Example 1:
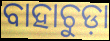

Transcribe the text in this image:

ବାହାଚୁଡ଼ା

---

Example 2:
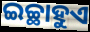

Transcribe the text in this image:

ଇଚ୍ଛାହୁଏ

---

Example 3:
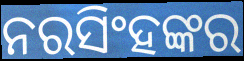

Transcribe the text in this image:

ନରସିଂହଙ୍କର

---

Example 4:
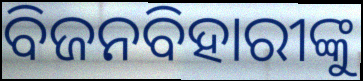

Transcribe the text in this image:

ବିଜନବିହାରୀଙ୍କୁ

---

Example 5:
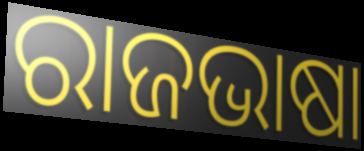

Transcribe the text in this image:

ରାଜଭାଷା